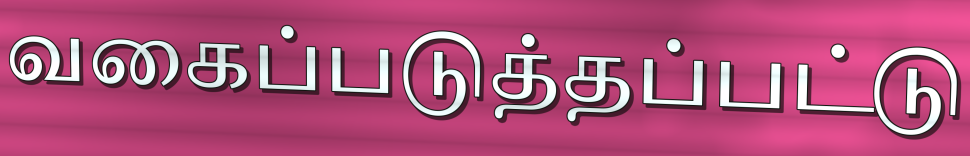
வகைப்படுத்தப்பட்டு